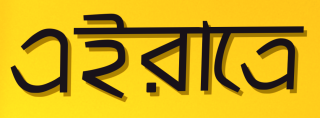
এইরাত্রে